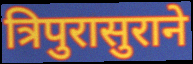
त्रिपुरासुराने